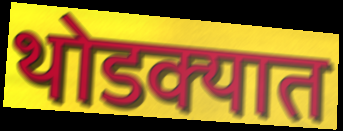
थोडक्यात